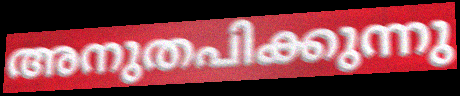
അനുതപിക്കുന്നു